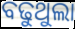
ବଢୁଥୁଲା